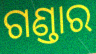
ଗଣ୍ଡାର